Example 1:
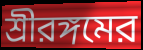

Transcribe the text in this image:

শ্রীরঙ্গমের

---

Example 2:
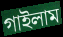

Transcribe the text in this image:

গাইলাম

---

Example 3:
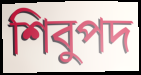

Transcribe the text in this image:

শিবুপদ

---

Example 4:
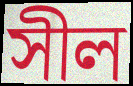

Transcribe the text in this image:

সীল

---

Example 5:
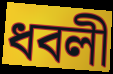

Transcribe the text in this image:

ধবলী